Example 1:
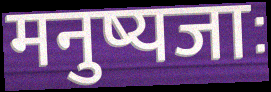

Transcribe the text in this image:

मनुष्यजाः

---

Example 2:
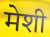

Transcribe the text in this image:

मेशी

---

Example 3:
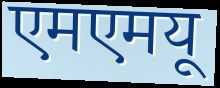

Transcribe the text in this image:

एमएमयू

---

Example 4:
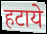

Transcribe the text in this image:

हटाये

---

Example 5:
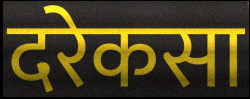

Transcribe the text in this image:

दरेकसा